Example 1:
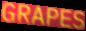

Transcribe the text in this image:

GRAPES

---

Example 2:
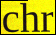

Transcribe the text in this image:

chr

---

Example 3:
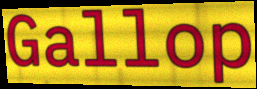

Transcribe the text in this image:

Gallop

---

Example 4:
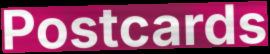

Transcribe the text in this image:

Postcards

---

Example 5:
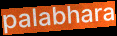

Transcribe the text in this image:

palabhara